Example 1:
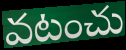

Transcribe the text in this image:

వటంచు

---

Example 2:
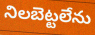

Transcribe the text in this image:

నిలబెట్టలేను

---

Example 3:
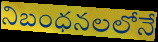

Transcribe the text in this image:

నిబంధనలలోనే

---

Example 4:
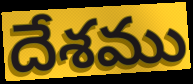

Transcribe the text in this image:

దేశము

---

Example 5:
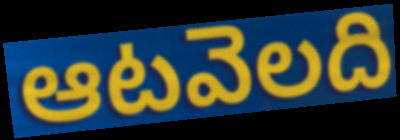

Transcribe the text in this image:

ఆటవెలది